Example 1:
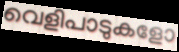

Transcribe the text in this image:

വെളിപാടുകളോ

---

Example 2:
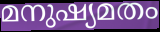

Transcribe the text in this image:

മനുഷ്യമതം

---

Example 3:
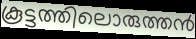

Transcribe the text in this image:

കൂട്ടത്തിലൊരുത്തൻ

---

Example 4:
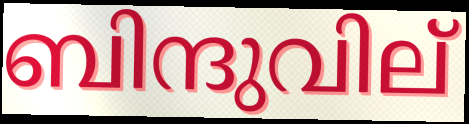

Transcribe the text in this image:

ബിന്ദുവില്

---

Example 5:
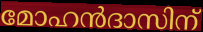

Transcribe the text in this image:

മോഹൻദാസിന്